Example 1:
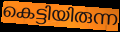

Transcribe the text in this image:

കെട്ടിയിരുന്ന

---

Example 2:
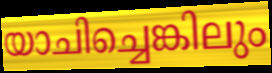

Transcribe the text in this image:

യാചിച്ചെങ്കിലും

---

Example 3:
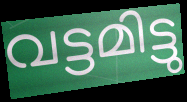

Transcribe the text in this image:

വട്ടമിട്ടു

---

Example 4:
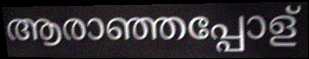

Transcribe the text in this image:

ആരാഞ്ഞപ്പോള്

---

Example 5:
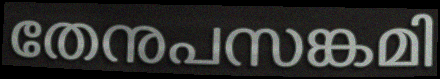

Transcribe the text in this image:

തേനുപസങ്കമി